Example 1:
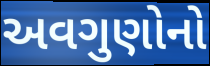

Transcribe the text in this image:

અવગુણોનો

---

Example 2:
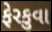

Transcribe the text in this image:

ફેરકુવા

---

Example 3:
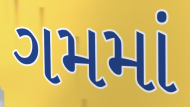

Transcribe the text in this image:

ગમમાં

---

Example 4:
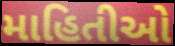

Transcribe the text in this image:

માહિતીઓ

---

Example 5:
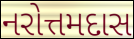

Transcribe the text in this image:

નરોત્તમદાસ